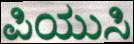
ಪಿಯುಸಿ